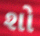
શો